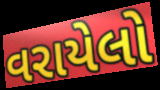
વરાયેલો